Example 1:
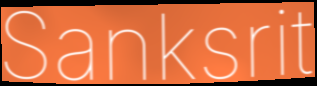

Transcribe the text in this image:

Sanksrit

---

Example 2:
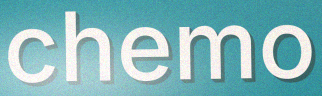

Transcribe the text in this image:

chemo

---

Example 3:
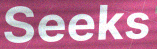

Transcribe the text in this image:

Seeks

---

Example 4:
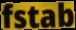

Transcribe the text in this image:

fstab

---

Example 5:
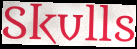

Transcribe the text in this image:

Skulls